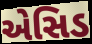
એસિડ